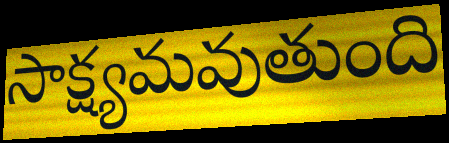
సాక్ష్యమవుతుంది